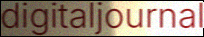
digitaljournal